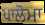
ਪਾਲੋਮਾ